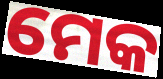
ମେକ